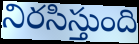
నిరసిస్తుంది